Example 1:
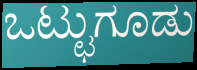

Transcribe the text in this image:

ಒಟ್ಟುಗೂಡು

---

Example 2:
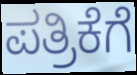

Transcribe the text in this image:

ಪತ್ರಿಕೆಗೆ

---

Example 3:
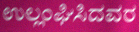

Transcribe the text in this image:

ಉಲ್ಲಂಘಿಸಿದವರ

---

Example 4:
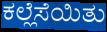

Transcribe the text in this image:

ಕಲ್ಲೆಸೆಯಿತು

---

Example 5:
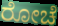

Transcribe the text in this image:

ರೋಚೆ